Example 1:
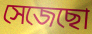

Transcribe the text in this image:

সেজেছো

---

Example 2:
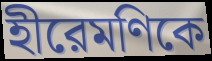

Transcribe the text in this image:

হীরেমণিকে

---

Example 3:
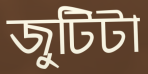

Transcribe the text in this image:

জুটিটা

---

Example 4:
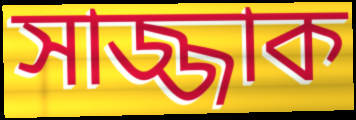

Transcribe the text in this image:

সাজ্জাক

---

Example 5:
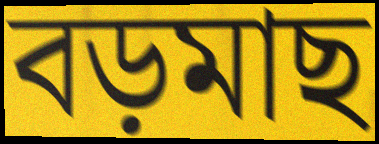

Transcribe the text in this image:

বড়মাছ